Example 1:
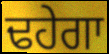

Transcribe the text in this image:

ਢਹੇਗਾ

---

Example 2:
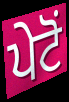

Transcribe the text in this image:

ਪੇਟੋਂ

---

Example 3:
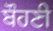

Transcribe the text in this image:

ਬੌਹਣੀ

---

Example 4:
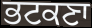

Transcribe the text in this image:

ਭਟਕਣਾ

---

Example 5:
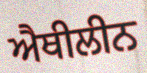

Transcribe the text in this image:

ਐਥੀਲੀਨ